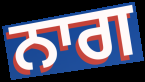
ਨਾਗ